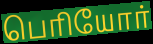
பெரியோர்